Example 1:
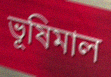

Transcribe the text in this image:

ভূষিমাল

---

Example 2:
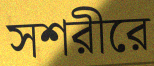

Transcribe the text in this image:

সশরীরে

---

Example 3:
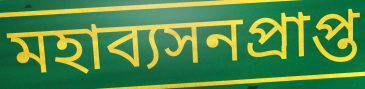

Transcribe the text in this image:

মহাব্যসনপ্রাপ্ত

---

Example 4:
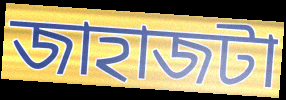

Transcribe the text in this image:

জাহাজটা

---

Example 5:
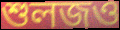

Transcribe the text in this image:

শুলজও